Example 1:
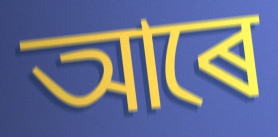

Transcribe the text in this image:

আৰে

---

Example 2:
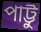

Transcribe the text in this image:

পাট্টু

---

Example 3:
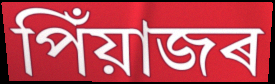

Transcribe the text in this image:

পিঁয়াজৰ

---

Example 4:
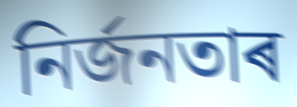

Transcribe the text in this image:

নিৰ্জনতাৰ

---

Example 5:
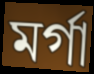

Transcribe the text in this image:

মৰ্গা